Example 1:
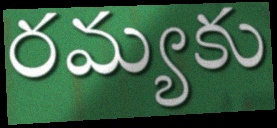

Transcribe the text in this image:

రమ్యకు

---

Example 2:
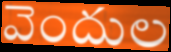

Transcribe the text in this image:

వెందుల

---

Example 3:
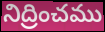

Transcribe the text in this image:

నిద్రించము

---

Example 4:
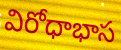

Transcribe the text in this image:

విరోధాభాస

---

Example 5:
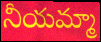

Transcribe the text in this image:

నీయమ్మా